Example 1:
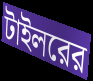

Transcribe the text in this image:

টাইলরের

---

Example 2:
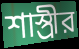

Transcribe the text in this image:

শাস্ত্রীর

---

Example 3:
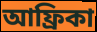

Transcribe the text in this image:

আফ্রিকা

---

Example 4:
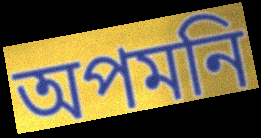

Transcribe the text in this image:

অপমনি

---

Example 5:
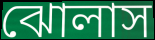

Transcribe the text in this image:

ঝোলাস